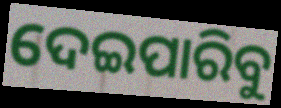
ଦେଇପାରିବୁ